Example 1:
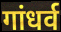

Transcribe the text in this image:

गांधर्व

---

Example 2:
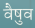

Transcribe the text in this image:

वैषुव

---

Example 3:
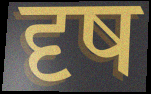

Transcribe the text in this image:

दृष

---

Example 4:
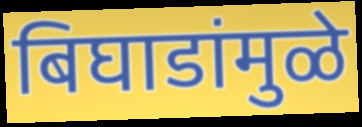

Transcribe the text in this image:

बिघाडांमुळे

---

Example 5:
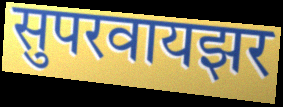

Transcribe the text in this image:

सुपरवायझर